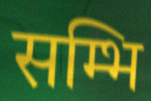
सम्भि